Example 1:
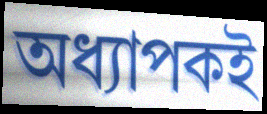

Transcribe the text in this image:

অধ্যাপকই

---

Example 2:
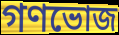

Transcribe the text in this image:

গণভোজ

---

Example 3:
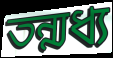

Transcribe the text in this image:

তন্মধ্য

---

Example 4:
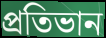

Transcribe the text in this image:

প্রতিভান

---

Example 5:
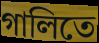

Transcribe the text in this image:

গালিতে